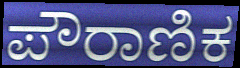
ಪೌರಾಣಿಕ